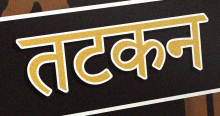
तटकन